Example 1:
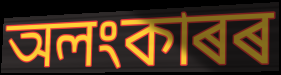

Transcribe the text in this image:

অলংকাৰৰ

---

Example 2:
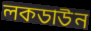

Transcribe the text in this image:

লকডাউন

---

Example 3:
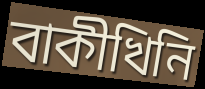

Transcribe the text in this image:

বাকীখিনি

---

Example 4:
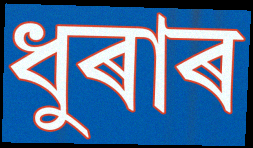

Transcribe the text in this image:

ধুৰাৰ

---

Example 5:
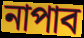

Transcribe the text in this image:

নাপাব